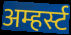
अम्हर्स्ट